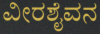
ವೀರಶೈವನ